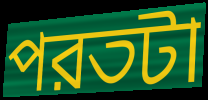
পরতটা